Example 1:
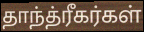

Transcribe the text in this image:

தாந்த்ரீகர்கள்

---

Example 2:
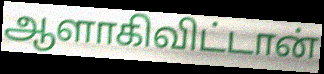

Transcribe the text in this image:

ஆளாகிவிட்டான்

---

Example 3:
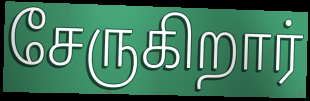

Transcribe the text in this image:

சேருகிறார்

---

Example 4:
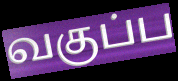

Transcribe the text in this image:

வகுப்ப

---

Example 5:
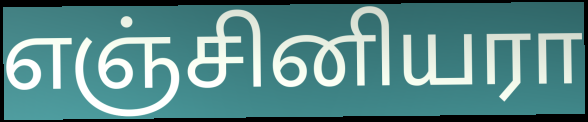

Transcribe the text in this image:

எஞ்சினியரா